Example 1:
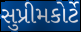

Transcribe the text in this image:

સુપ્રીમકોર્ટે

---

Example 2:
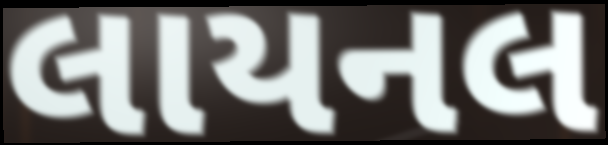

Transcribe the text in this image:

લાયનલ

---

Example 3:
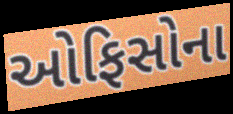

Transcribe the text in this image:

ઓફિસોના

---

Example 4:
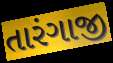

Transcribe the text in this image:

તારંગાજી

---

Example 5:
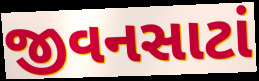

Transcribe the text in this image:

જીવનસાટાં